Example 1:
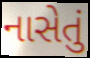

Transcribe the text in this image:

નાસેતું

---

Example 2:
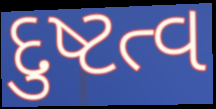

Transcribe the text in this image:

દુષ્ટત્વ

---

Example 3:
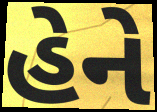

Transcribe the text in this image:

હેને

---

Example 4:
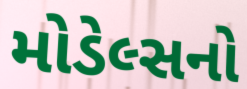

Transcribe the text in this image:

મોડેલ્સનો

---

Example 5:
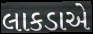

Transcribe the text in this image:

લાકડાએ